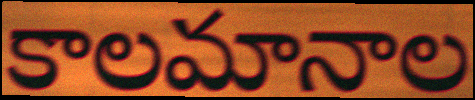
కాలమానాల